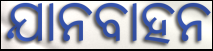
ଯାନବାହନ